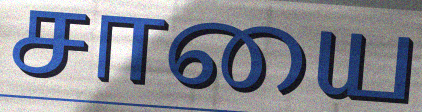
சாயை